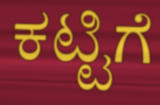
ಕಟ್ಟಿಗೆ